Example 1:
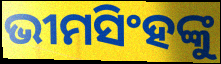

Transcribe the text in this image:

ଭୀମସିଂହଙ୍କୁ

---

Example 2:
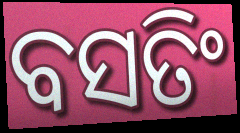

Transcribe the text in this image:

ବସତିଂ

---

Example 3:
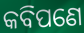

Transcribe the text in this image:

କବିପଣେ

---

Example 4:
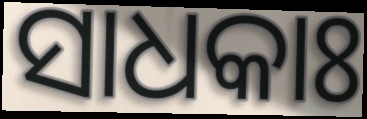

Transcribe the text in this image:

ସାଧକାଃ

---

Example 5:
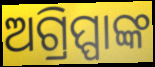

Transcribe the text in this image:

ଅଗ୍ରିପ୍ପାଙ୍କ